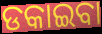
ଡକାଇବା